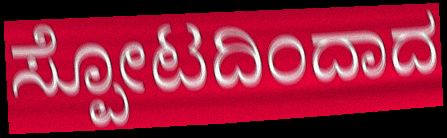
ಸ್ಪೋಟದಿಂದಾದ